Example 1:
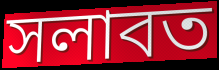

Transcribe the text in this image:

সলাবত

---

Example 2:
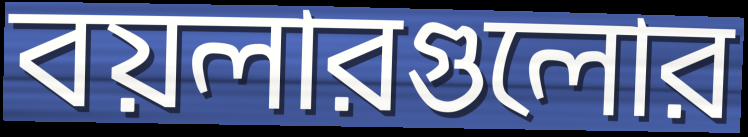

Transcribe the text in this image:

বয়লারগুলোর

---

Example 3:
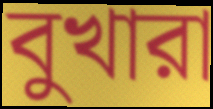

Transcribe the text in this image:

বুখারা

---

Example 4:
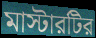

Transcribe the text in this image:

মাস্টারটির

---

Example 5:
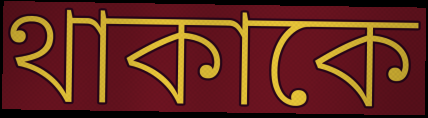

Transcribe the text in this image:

থাকাকে